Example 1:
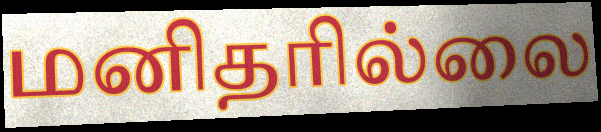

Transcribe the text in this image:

மனிதரில்லை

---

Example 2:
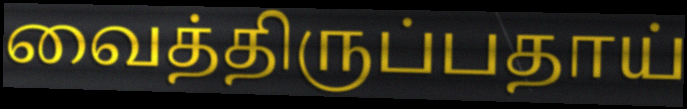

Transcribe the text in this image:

வைத்திருப்பதாய்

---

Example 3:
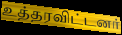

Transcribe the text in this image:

உத்தரவிட்டனர்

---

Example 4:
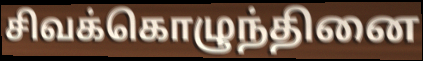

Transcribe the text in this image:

சிவக்கொழுந்தினை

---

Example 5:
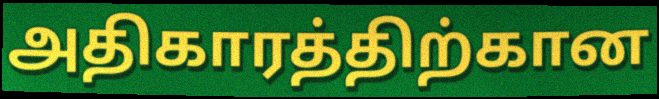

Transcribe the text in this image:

அதிகாரத்திற்கான